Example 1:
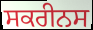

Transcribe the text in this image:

ਸਕਰੀਨਸ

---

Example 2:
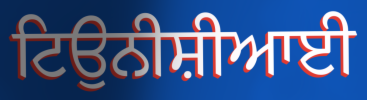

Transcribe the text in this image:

ਟਿਉਨੀਸ਼ੀਆਈ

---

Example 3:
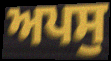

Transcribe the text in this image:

ਅਪਸੁ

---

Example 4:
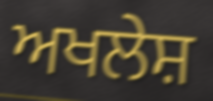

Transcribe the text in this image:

ਅਖਲੇਸ਼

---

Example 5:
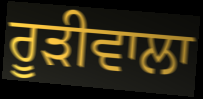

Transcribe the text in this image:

ਰੂਡ਼ੀਵਾਲਾ